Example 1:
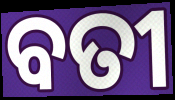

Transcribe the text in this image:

ବତୀ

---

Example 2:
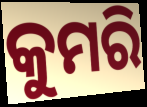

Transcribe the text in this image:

କୁମରି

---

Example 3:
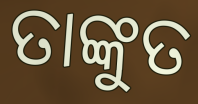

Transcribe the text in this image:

ତାଙ୍କୁତ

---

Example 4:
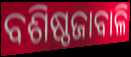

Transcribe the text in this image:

ବଶିଷ୍ଠଜାବାଳି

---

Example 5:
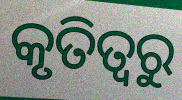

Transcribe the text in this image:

କୃତିତ୍ଵରୁ